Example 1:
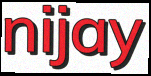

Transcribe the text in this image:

nijay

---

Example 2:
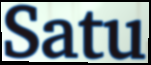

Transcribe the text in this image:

Satu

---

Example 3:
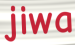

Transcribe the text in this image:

jiwa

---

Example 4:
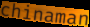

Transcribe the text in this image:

chinaman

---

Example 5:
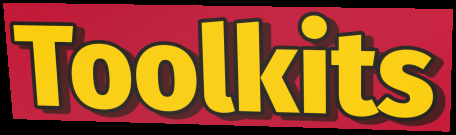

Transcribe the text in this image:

Toolkits